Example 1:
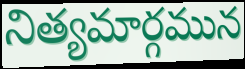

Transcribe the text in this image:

నిత్యమార్గమున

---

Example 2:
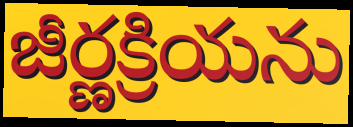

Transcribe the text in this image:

జీర్ణక్రియను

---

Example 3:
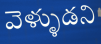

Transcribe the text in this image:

వెళ్ళుడని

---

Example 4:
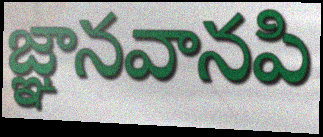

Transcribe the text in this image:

జ్ఞానవానపి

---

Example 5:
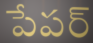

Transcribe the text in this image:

పేపర్